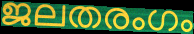
ജലതരംഗം